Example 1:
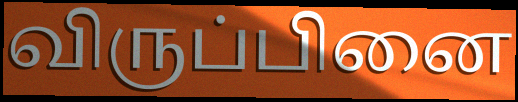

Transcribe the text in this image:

விருப்பினை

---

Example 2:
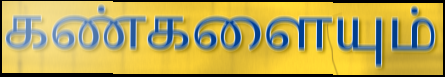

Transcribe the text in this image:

கண்களையும்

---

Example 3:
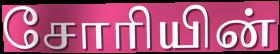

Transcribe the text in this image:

சோரியின்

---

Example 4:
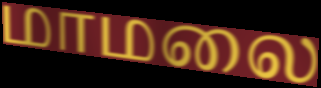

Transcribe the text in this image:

மாமலை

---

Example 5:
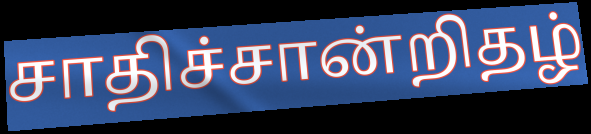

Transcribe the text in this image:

சாதிச்சான்றிதழ்